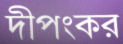
দীপংকর